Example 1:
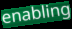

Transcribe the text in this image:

enabling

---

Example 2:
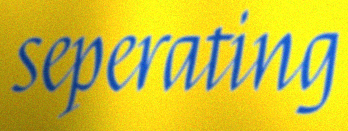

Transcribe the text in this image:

seperating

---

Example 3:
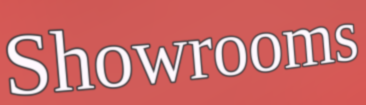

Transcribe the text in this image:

Showrooms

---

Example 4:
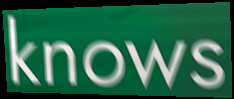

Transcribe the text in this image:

knows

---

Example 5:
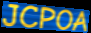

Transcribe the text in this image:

JCPOA